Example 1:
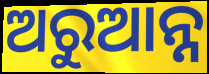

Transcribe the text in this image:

ଅରୁଆନ୍ନ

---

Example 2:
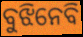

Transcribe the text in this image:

ବୁଝିନେବି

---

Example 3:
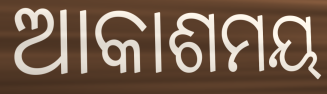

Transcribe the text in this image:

ଆକାଶମୟ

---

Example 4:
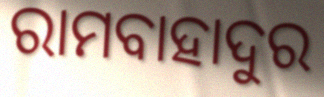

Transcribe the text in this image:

ରାମବାହାଦୁର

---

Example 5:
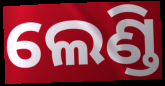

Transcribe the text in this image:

ଲେଣ୍ଡି